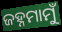
ଜହ୍ନମାମୁଁ